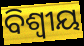
ବିଶ୍ଵୀୟ